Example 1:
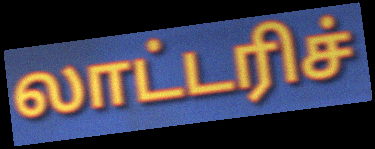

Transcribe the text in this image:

லாட்டரிச்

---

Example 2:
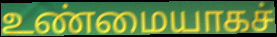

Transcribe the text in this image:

உண்மையாகச்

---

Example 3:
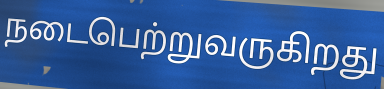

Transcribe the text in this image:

நடைபெற்றுவருகிறது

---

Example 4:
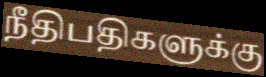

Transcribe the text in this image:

நீதிபதிகளுக்கு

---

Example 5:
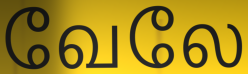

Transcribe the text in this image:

வேலே